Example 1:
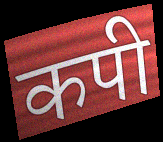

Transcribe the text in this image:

कपी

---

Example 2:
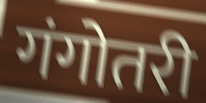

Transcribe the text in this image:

गंगोतरी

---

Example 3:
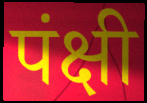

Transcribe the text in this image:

पंक्षी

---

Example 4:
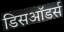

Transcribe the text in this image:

डिसऑडर्स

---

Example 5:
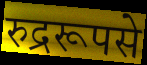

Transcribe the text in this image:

रुद्ररूपसे